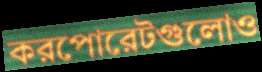
করপোরেটগুলোও